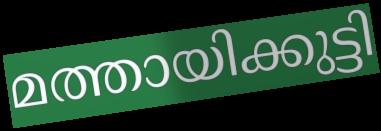
മത്തായിക്കുട്ടി